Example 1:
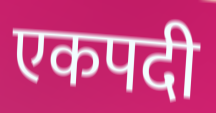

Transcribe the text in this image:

एकपदी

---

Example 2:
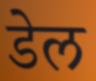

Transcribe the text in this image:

डेल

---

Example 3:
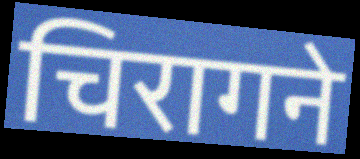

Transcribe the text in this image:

चिरागने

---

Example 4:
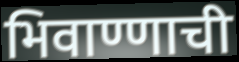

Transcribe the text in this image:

भिवाण्णाची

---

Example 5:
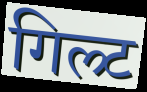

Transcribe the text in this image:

गिल्ट